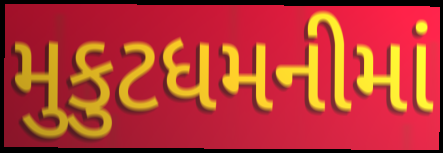
મુકુટધમનીમાં